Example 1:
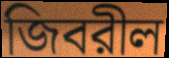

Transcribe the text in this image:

জিবরীল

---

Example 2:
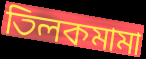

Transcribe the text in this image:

তিলকমামা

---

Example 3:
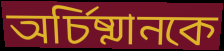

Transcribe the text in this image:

অর্চিষ্মানকে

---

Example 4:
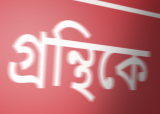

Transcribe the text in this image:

গ্রন্থিকে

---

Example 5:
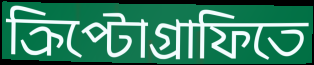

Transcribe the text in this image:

ক্রিপ্টোগ্রাফিতে